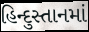
હિન્દુસ્તાનમાં